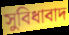
সুবিধাবাদ